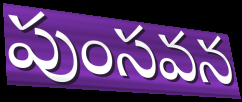
పుంసవన